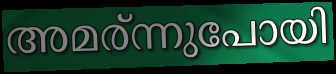
അമര്ന്നുപോയി